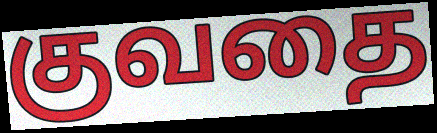
குவதை